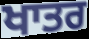
ਖਾਤਰ